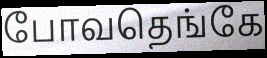
போவதெங்கே